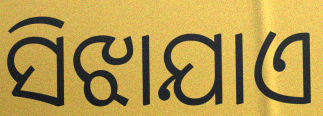
ସିଝାଯାଏ